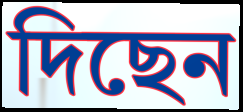
দিছেন